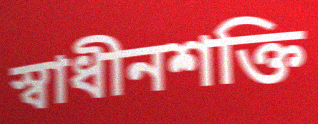
স্বাধীনশক্তি